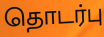
தொடர்பு